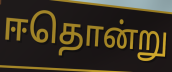
ஈதொன்று